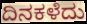
ದಿನಕಳೆದು